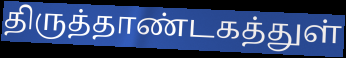
திருத்தாண்டகத்துள்